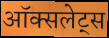
ऑक्सलेट्स